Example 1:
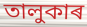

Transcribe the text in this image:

তালুকাৰ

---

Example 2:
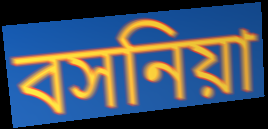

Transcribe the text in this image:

বসনিয়া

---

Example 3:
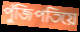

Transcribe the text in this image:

পুঁজিপতিয়ে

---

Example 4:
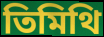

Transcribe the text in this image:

তিমিথি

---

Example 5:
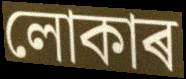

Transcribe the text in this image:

লোকাৰ